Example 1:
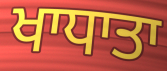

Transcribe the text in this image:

ਖਾਧਾਤਾ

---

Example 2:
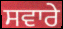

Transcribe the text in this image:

ਸਵਾਰੇ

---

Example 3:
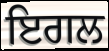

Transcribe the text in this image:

ਇਗਲ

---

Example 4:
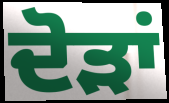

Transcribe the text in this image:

ਦੋੜਾਂ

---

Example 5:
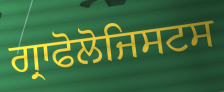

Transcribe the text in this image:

ਗ੍ਰਾਫੋਲੋਜਿਸਟਸ